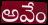
అవేం